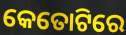
କେତୋଟିରେ